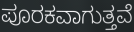
ಪೂರಕವಾಗುತ್ತವೆ